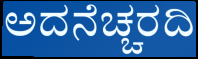
ಅದನೆಚ್ಚರದಿ